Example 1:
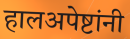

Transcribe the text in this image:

हालअपेष्टांनी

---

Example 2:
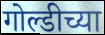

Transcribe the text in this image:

गोल्डीच्या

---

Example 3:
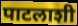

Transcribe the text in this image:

पाटलाशी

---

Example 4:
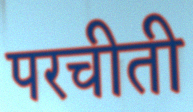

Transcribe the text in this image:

परचीती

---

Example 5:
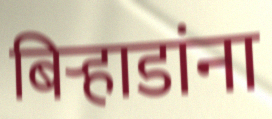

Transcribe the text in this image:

बिऱ्हाडांना